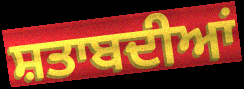
ਸ਼ਤਾਬਦੀਆਂ